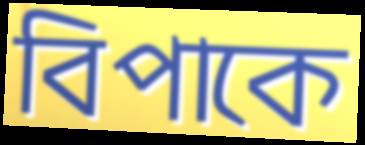
বিপাকে